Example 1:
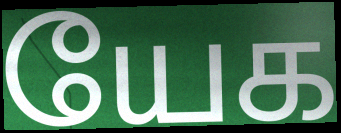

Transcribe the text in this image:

யேக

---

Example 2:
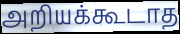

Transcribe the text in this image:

அறியக்கூடாத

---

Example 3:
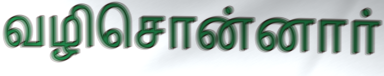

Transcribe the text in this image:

வழிசொன்னார்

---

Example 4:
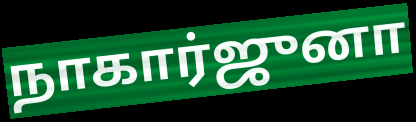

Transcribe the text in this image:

நாகார்ஜுனா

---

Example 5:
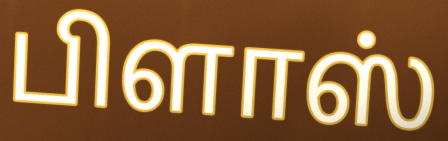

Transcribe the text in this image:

பிளாஸ்